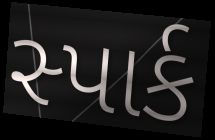
સ્પાર્ક